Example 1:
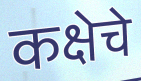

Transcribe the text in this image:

कक्षेचे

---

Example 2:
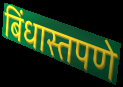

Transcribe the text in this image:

बिंधास्तपणे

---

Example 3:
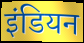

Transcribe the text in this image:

इंडियन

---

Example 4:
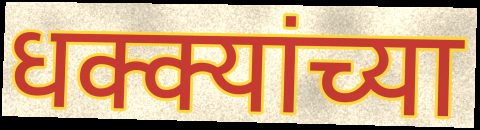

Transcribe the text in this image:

धक्क्यांच्या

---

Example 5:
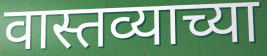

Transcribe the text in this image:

वास्तव्याच्या